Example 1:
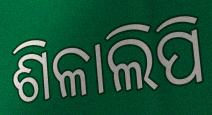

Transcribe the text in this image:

ଶିଳାଲିପି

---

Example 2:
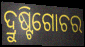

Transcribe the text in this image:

ଦ୍ରୁଷ୍ଟିଗୋଚର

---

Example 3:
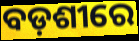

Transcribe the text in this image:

ବଡ଼ଶୀରେ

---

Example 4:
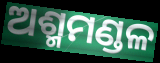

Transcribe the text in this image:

ଅଶ୍ମମଣ୍ଡଳ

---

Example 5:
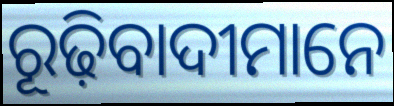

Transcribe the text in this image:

ରୂଢ଼ିବାଦୀମାନେ